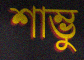
শাম্ভু